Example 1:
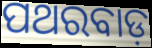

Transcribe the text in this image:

ପଥରବାଡ଼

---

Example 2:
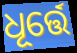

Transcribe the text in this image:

ଧୂର୍ତ୍ତେ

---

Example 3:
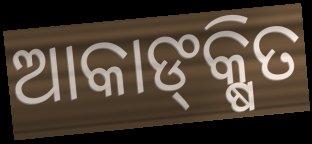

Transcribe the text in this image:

ଆକାଙ୍‍କ୍ଷିତ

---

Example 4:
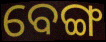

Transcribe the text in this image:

ବେଙ୍ଗ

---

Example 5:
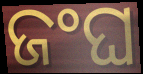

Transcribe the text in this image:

ଜଂଘ